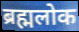
ब्रह्मलोक